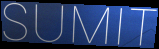
SUMIT